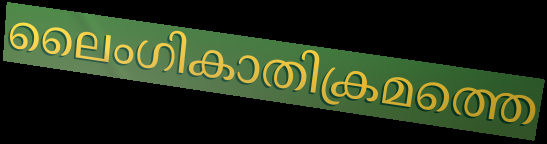
ലൈംഗികാതിക്രമത്തെ